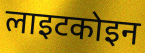
लाइटकोइन